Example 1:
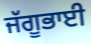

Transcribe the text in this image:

ਜੱਗੂਭਾਈ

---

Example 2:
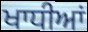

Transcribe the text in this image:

ਖਾਧੀਆਂ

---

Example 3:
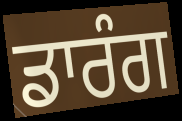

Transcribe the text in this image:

ਡਾਰੰਗ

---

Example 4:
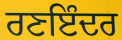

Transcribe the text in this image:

ਰਣਇੰਦਰ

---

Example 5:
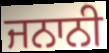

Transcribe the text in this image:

ਜਨਾਨੀ